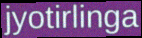
jyotirlinga